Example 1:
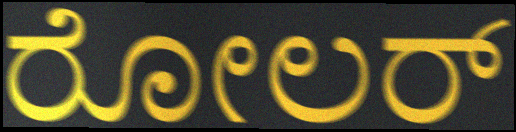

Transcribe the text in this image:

ರೋಲರ್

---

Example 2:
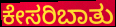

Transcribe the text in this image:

ಕೇಸರಿಬಾತು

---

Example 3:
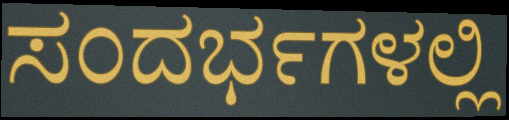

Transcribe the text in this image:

ಸಂದರ್ಭಗಳಲ್ಲಿ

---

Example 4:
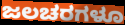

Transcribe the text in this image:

ಜಲಚರಗಳೂ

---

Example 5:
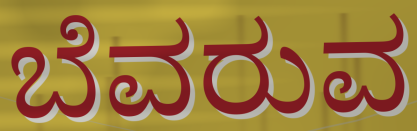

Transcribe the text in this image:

ಬೆವರುವ